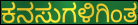
ಕನಸುಗಳಿಗಿಂತ